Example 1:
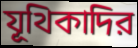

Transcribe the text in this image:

যূথিকাদির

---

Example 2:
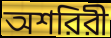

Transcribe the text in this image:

অশরিরী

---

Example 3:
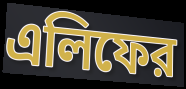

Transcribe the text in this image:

এলিফের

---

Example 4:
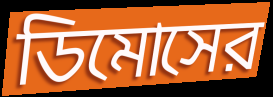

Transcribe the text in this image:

ডিমোসের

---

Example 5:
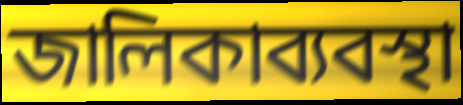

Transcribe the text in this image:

জালিকাব্যবস্থা